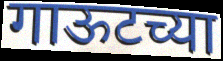
गाऊटच्या